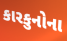
કારકુનોના